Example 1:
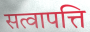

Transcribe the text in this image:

सत्वापत्ति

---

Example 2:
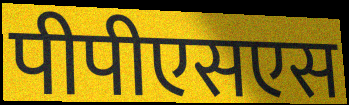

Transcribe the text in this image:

पीपीएसएस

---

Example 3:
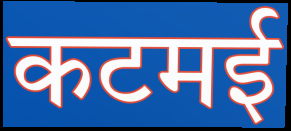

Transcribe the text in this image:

कटमई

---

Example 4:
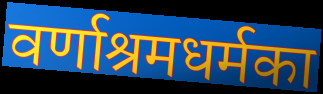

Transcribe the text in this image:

वर्णाश्रमधर्मका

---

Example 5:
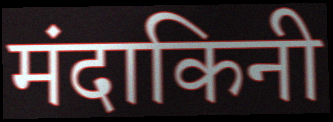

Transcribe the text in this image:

मंदाकिनी